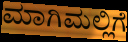
ಮಾಗಿಮಲ್ಲಿಗೆ